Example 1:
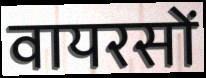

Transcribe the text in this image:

वायरसों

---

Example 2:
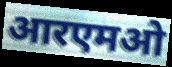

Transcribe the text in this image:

आरएमओ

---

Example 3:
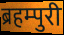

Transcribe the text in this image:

ब्रहम्पुरी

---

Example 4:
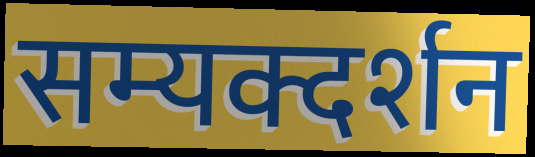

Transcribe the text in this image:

सम्यक्दर्शन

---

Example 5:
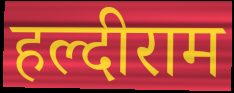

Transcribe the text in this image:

हल्दीराम